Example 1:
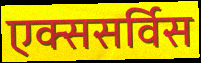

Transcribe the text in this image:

एक्ससर्विस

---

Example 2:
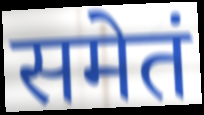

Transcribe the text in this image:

समेतं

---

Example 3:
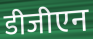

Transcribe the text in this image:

डीजीएन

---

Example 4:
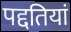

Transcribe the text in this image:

पद्दतियां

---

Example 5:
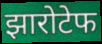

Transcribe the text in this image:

झारोटेफ